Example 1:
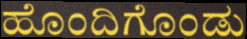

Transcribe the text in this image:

ಹೊಂದಿಗೊಂಡು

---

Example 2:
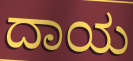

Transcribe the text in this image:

ದಾಯ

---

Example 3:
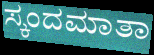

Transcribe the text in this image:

ಸ್ಕಂದಮಾತಾ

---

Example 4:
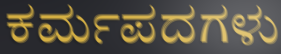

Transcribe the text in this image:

ಕರ್ಮಪದಗಳು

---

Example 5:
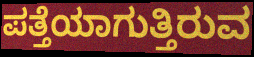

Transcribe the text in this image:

ಪತ್ತೆಯಾಗುತ್ತಿರುವ